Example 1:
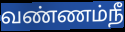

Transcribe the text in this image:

வண்ணம்நீ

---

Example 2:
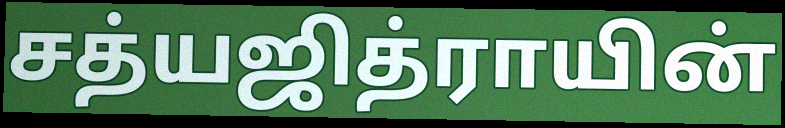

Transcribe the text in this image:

சத்யஜித்ராயின்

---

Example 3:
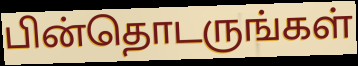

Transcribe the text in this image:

பின்தொடருங்கள்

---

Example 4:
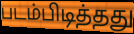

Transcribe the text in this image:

படம்பிடித்தது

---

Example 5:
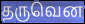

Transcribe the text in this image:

தருவென